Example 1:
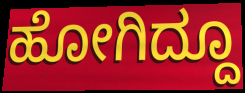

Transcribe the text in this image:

ಹೋಗಿದ್ದೂ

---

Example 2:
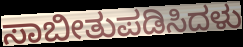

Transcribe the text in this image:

ಸಾಬೀತುಪಡಿಸಿದಳು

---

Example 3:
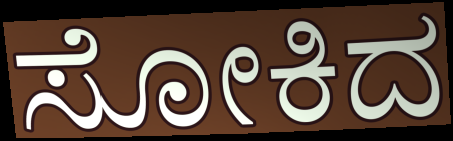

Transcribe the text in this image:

ಸೋಕಿದ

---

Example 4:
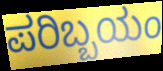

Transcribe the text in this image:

ಪರಿಬ್ಬಯಂ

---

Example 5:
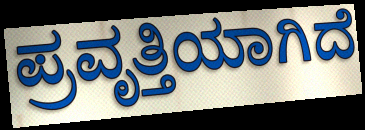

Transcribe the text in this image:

ಪ್ರವೃತ್ತಿಯಾಗಿದೆ